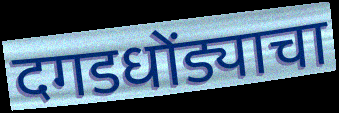
दगडधोंड्याचा